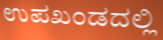
ಉಪಖಂಡದಲ್ಲಿ